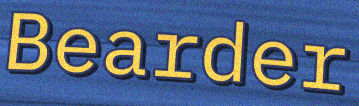
Bearder